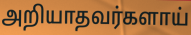
அறியாதவர்களாய்